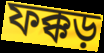
ফক্কড়